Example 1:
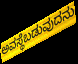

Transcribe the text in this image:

ಅವಸ್ಥೆಬಡುವುದನು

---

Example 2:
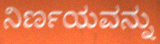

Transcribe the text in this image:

ನಿರ್ಣಯವನ್ನು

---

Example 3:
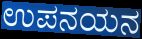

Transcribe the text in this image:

ಉಪನಯನ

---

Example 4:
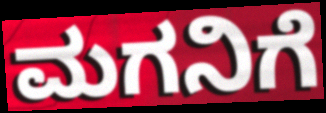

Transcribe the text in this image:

ಮಗನಿಗೆ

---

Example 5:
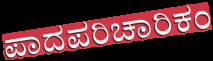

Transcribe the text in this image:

ಪಾದಪರಿಚಾರಿಕಂ